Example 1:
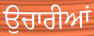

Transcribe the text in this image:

ਉਚਾਰੀਆਂ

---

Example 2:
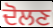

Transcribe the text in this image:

ਦੋਲਣ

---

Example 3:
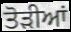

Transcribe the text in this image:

ਤੋਡ਼ੀਆਂ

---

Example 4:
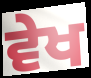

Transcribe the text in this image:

ਵੇਖ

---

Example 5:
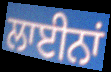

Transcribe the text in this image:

ਲਾਈਨਾਂ